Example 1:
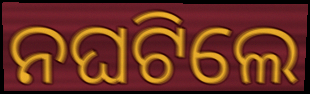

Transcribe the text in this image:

ନଘଟିଲେ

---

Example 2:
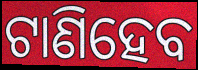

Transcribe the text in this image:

ଟାଣିହେବ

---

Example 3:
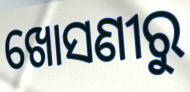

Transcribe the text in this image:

ଖୋସଣୀରୁ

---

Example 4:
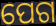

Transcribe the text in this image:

ପେଗ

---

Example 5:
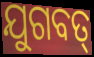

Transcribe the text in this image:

ଯୁଗବତ୍